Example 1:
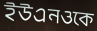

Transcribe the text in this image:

ইউএনওকে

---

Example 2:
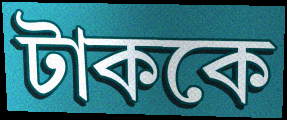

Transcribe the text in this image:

টাককে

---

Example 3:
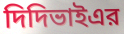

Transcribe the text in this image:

দিদিভাইএর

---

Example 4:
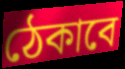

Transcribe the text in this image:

ঠেকাবে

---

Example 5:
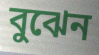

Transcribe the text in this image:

বুঝেন